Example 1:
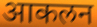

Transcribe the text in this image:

आकलन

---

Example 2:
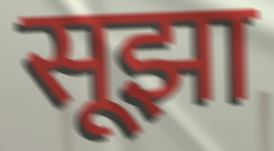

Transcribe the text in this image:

सूझा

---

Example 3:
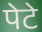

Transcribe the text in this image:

पेटे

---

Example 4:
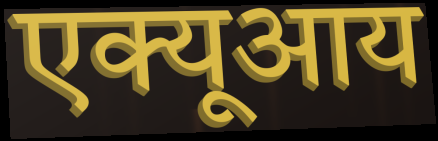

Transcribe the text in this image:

एक्यूआय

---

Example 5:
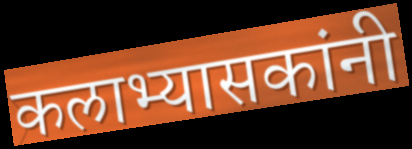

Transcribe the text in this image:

कलाभ्यासकांनी